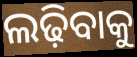
ଲଢ଼ିବାକୁ